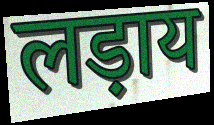
लड़ाय